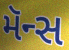
મૅન્સ